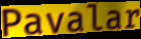
Pavalar